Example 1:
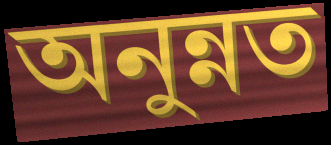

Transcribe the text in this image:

অনুন্নত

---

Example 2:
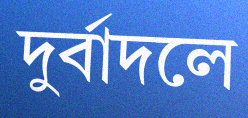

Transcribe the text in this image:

দুর্বাদলে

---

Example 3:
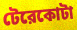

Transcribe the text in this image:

টেরেকোটা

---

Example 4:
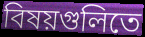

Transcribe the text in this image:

বিষয়গুলিতে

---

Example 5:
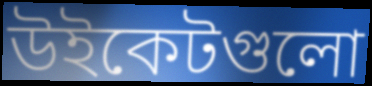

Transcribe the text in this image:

উইকেটগুলো